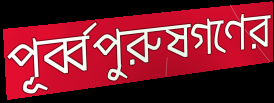
পূর্ব্বপুরুষগণের